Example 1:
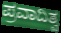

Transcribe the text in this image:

ಪ್ರವಾದಿತ್ವ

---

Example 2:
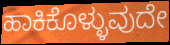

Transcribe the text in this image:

ಹಾಕಿಕೊಳ್ಳುವುದೇ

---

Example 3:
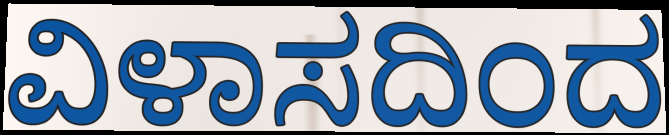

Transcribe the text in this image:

ವಿಳಾಸದಿಂದ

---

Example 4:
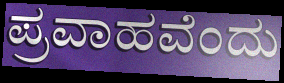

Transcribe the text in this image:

ಪ್ರವಾಹವೆಂದು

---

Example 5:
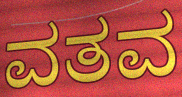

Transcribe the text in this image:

ವತವ